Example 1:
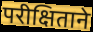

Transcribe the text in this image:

परीक्षिताने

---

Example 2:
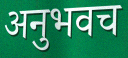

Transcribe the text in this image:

अनुभवच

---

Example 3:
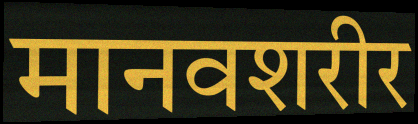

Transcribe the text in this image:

मानवशरीर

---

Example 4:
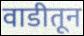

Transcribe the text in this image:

वाडीतून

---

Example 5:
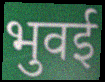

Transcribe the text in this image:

भुवई